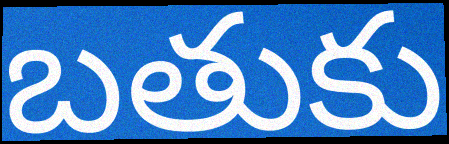
బతుకు